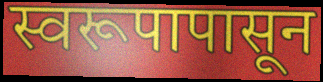
स्वरूपापासून